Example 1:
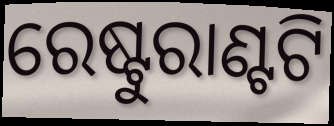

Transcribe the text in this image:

ରେଷ୍ଟୁରାଣ୍ଟଟି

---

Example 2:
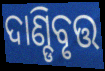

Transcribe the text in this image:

ଦାଣ୍ଡିବୃତ୍ତ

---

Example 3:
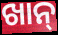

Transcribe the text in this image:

ଖାନ୍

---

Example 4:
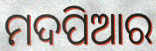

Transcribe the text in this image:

ମଦପିଆର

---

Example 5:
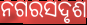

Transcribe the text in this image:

ନଗରସଦୃଶ